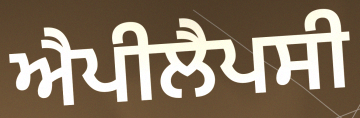
ਐਪੀਲੈਪਸੀ